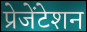
प्रेजेंटेशन